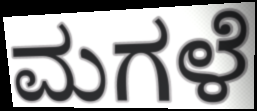
ಮಗಳೆ